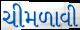
ચીમળાવી